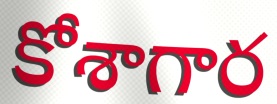
కోశాగార